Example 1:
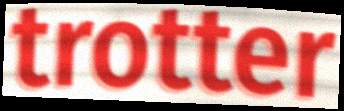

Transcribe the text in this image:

trotter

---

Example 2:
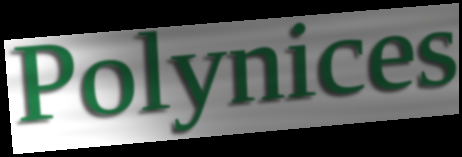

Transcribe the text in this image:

Polynices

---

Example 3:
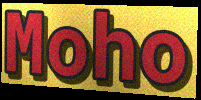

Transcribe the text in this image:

Moho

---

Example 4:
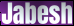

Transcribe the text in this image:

Jabesh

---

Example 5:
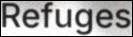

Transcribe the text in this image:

Refuges